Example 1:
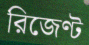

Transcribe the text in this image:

রিজেণ্ট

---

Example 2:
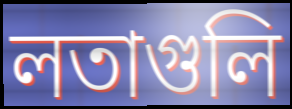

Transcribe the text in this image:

লতাগুলি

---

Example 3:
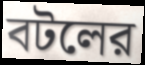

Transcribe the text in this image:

বটলের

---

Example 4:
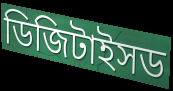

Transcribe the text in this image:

ডিজিটাইসড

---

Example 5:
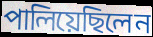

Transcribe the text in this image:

পালিয়েছিলেন